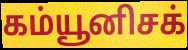
கம்யூனிசக்